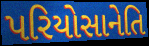
પરિયોસાનેતિ